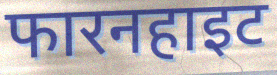
फारनहाइट